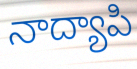
నాద్యాపి